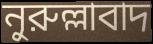
নুরুল্লাবাদ